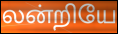
லன்றியே